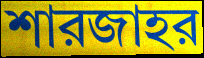
শারজাহর